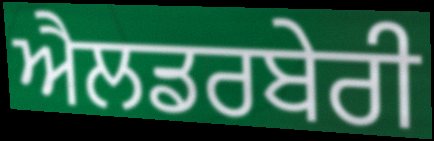
ਐਲਡਰਬੇਰੀ